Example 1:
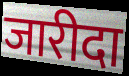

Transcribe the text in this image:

जारीदा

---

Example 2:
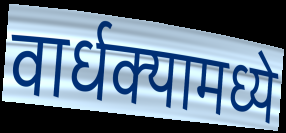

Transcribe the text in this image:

वार्धक्यामध्ये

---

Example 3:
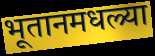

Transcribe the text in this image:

भूतानमधल्या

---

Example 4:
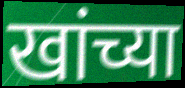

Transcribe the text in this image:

खांच्या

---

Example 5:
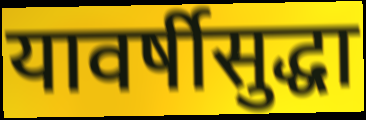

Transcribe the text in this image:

यावर्षीसुद्धा